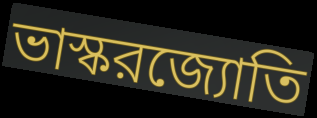
ভাস্করজ্যোতি